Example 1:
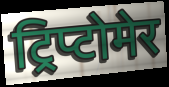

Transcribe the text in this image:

ट्रिप्टोमेर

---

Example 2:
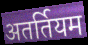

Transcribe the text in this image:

अतर्तियम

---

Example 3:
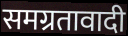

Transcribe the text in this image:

समग्रतावादी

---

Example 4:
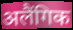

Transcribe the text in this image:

अलैंगिक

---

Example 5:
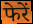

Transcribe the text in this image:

फेरें